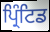
ਪ੍ਰਿੰਟਿਡ